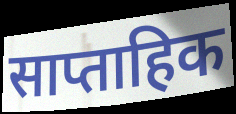
साप्ताहिक